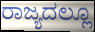
ರಾಜ್ಯದಲ್ಲೂ